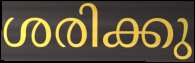
ശരിക്കു